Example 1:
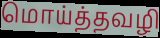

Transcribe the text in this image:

மொய்த்தவழி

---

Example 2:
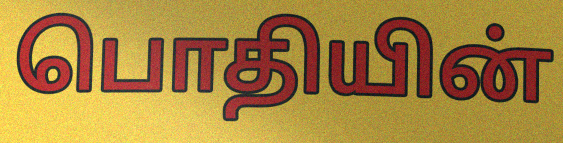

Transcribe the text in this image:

பொதியின்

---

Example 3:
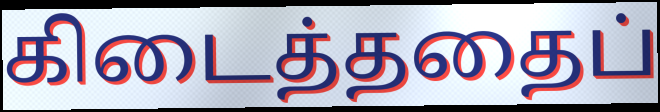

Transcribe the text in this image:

கிடைத்ததைப்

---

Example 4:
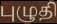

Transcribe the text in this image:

புழுதி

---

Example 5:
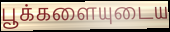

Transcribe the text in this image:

பூக்களையுடைய